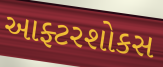
આફ્ટરશોકસ